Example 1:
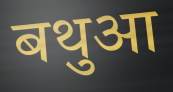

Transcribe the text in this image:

बथुआ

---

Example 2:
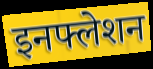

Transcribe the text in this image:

इनफ्लेशन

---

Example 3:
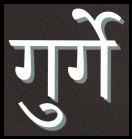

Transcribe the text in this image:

गुर्गे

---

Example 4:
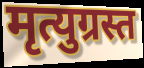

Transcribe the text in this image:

मृत्युग्रस्त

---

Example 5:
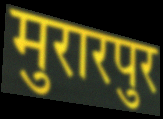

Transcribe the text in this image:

मुरारपुर